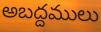
అబద్దములు